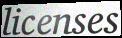
licenses